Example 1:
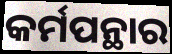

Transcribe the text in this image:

କର୍ମପନ୍ଥାର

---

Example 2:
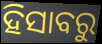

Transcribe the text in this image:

ହିସାବରୁ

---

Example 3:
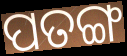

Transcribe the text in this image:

ପତଙ୍ଗ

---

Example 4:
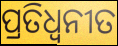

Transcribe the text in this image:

ପ୍ରତିଧ୍ବନୀତ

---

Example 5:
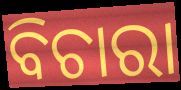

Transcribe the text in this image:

ବିଚାରା